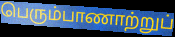
பெரும்பாணாற்றுப்